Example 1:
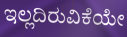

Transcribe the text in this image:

ಇಲ್ಲದಿರುವಿಕೆಯೇ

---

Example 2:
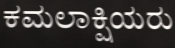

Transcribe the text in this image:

ಕಮಲಾಕ್ಷಿಯರು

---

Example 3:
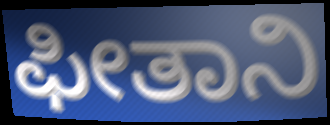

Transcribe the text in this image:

ಫೀತಾನಿ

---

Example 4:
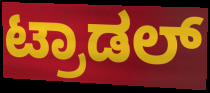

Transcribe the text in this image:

ಟ್ರಾಡಲ್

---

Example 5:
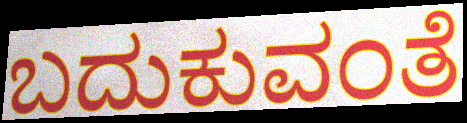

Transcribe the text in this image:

ಬದುಕುವಂತೆ